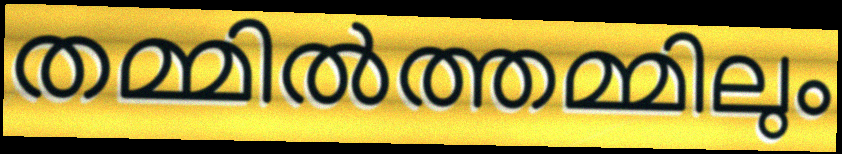
തമ്മിൽത്തമ്മിലും